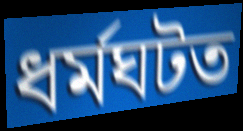
ধৰ্মঘটত